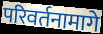
परिवर्तनामागे